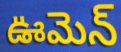
ఊమెన్